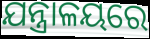
ଯନ୍ତ୍ରାଳୟରେ